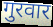
गुरवार